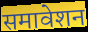
समावेशन